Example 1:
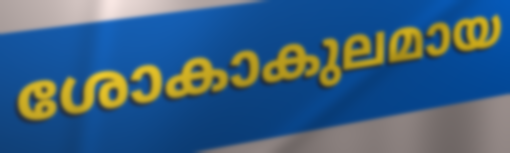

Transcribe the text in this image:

ശോകാകുലമായ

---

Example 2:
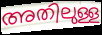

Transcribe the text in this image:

അതിലുള്ള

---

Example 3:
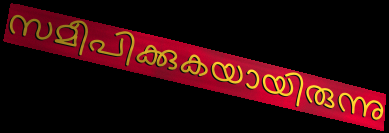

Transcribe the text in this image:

സമീപിക്കുകയായിരുന്നു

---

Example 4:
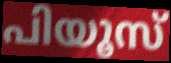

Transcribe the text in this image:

പിയൂസ്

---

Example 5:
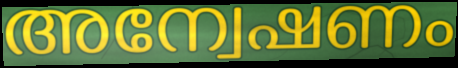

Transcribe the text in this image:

അന്വേഷണം